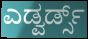
ಎಡ್ವರ್ಡ್ಸ್